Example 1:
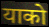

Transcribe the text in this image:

याको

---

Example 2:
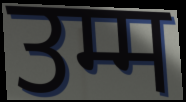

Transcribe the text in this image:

उम्म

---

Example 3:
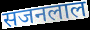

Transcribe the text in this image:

सजनलाल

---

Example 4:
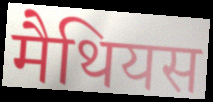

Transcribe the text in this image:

मैथियस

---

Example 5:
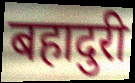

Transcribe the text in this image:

बहादुरी